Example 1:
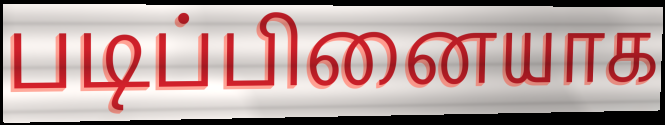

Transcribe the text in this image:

படிப்பினையாக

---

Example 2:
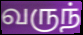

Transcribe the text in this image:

வருந்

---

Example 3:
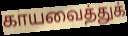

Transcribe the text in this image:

காயவைத்துக்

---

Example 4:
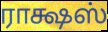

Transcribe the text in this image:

ராக்ஷஸ்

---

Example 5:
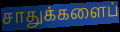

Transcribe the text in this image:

சாதுக்களைப்